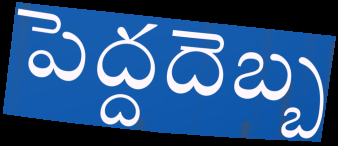
పెద్దదెబ్బ